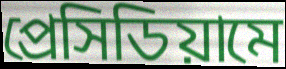
প্রেসিডিয়ামে